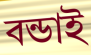
বন্ডাই